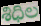
శిధిల